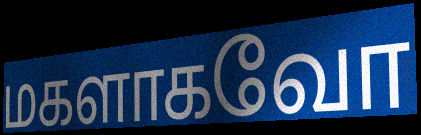
மகளாகவோ